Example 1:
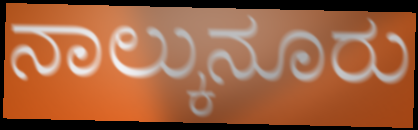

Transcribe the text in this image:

ನಾಲ್ಕುನೂರು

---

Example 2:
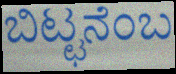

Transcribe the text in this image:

ಬಿಟ್ಟನೆಂಬ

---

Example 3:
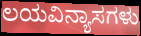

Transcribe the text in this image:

ಲಯವಿನ್ಯಾಸಗಳು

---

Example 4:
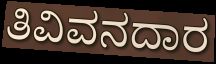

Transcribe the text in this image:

ತಿವಿವನದಾರ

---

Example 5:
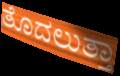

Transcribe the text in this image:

ತೊದಲುತ್ತಾ